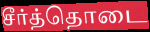
சீர்த்தொடை